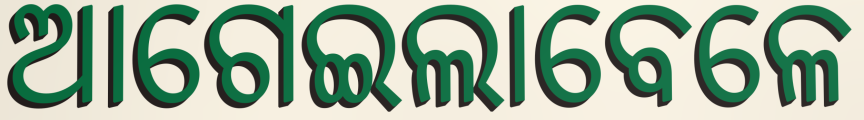
ଆଗେଇଲାବେଳେ